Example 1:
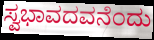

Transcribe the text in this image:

ಸ್ವಭಾವದವನೆಂದು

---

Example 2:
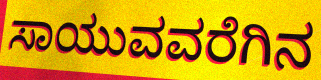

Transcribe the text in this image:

ಸಾಯುವವರೆಗಿನ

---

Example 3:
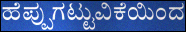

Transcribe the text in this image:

ಹೆಪ್ಪುಗಟ್ಟುವಿಕೆಯಿಂದ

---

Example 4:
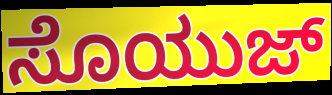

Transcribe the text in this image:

ಸೊಯುಜ್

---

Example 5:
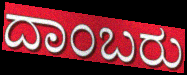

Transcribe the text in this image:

ದಾಂಬರು